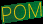
POM